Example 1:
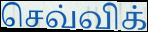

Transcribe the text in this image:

செவ்விக்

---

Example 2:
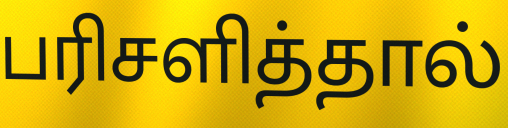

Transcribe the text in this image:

பரிசளித்தால்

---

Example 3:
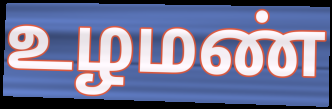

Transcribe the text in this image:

உழமண்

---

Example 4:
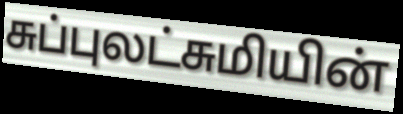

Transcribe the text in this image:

சுப்புலட்சுமியின்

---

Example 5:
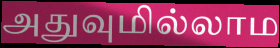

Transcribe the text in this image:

அதுவுமில்லாம